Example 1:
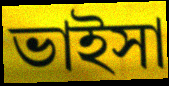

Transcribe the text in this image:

ভাইসা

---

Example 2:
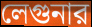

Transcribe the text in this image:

লেগুনার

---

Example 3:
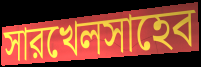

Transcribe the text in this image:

সারখেলসাহেব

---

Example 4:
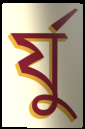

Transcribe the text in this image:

র্যু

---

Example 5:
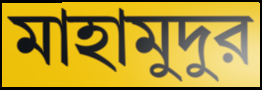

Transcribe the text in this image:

মাহামুদুর